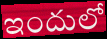
ఇందులో